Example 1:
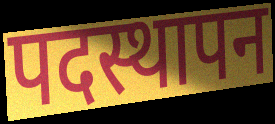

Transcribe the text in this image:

पदस्थापन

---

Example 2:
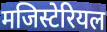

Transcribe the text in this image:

मजिस्टेरियल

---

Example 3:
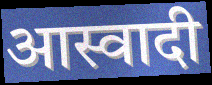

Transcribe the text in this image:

आस्वादी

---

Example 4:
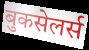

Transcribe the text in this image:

बुकसेलर्स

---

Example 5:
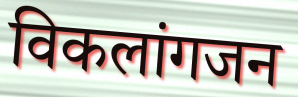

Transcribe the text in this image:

विकलांगजन